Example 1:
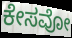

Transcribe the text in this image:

ಕೇಸವೋ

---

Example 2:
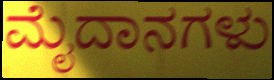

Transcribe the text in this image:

ಮೈದಾನಗಳು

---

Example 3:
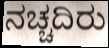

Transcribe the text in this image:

ನಚ್ಚದಿರು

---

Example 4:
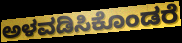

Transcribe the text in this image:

ಅಳವಡಿಸಿಕೊಂಡರೆ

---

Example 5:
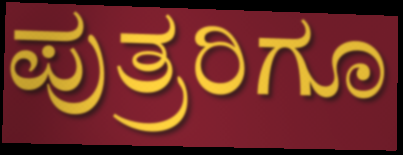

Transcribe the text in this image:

ಪುತ್ರರಿಗೂ